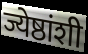
ज्येष्ठांशी